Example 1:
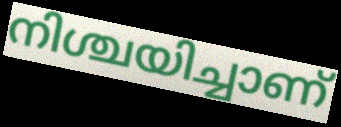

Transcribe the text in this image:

നിശ്ചയിച്ചാണ്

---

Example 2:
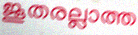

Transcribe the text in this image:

ജൂതരല്ലാത്ത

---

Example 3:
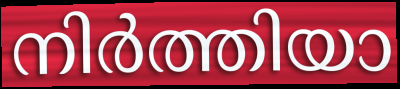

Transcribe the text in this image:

നിർത്തിയാ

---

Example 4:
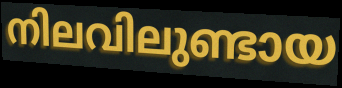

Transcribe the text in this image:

നിലവിലുണ്ടായ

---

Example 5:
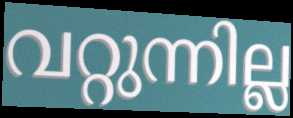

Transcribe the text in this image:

വറ്റുന്നില്ല